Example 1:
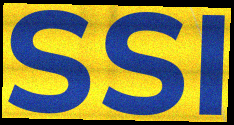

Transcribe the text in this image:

SSI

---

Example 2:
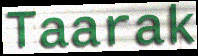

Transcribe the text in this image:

Taarak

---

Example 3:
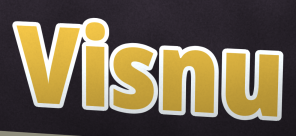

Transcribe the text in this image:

Visnu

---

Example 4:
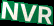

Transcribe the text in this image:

NVR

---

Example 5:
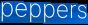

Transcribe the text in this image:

peppers